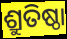
ଶ୍ରୁତିଷ୍ଠା